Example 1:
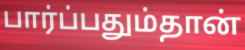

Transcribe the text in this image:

பார்ப்பதும்தான்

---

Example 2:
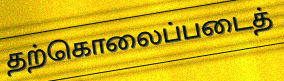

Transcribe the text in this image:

தற்கொலைப்படைத்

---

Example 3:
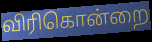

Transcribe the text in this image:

விரிகொன்றை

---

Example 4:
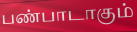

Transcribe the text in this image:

பண்பாடாகும்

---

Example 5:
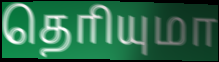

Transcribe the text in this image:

தெரியுமா